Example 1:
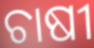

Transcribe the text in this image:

ଚାଷୀ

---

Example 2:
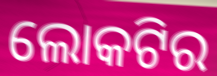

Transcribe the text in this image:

ଲୋକଟିର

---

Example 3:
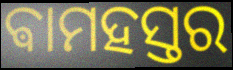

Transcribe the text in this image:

ଵାମହସ୍ତର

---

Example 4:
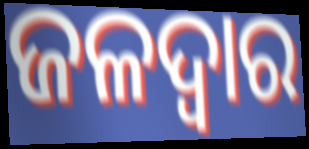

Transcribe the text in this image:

ଜଳଦ୍ୱାର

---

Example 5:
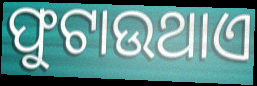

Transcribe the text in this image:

ଫୁଟାଉଥାଏ